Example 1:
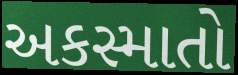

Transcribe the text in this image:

અકસ્માતો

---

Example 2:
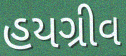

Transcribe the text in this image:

હયગ્રીવ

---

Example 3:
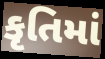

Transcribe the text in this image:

કૃતિમાં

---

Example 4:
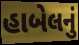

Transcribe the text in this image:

હાબેલનું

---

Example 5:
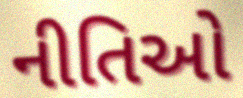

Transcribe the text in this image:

નીતિઓ